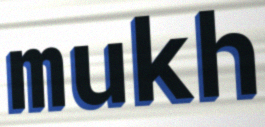
mukh